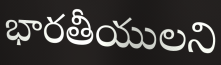
భారతీయులని